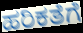
ಹರಿಕತೆಗೆ